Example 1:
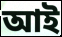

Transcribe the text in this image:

আই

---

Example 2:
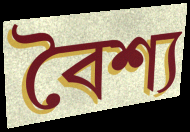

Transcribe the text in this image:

বৈশ্য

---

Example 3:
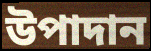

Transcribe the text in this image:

উপাদান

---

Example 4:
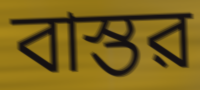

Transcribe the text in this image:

বাস্তৱ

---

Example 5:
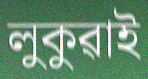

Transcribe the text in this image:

লুকুৱাই